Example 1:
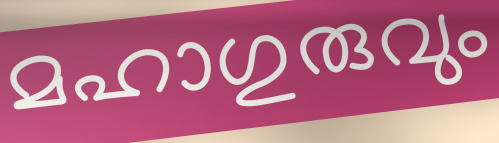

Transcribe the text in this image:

മഹാഗുരുവും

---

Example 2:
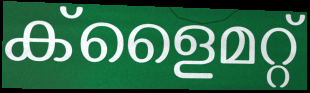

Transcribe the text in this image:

ക്ളൈമറ്റ്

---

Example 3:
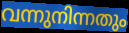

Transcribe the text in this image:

വന്നുനിന്നതും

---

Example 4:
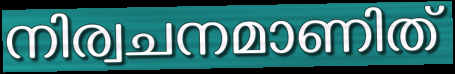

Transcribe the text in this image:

നിര്വചനമാണിത്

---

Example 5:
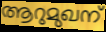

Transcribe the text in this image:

ആറുമുഖന്